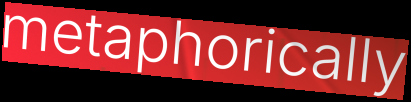
metaphorically